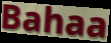
Bahaa